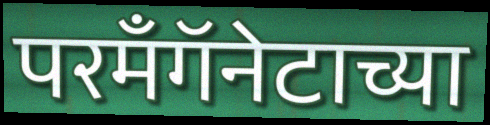
परमँगॅनेटाच्या